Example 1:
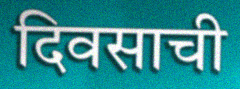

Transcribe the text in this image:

दिवसाची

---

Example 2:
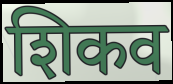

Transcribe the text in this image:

शिकव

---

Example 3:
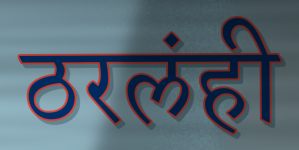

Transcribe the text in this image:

ठरलंही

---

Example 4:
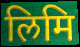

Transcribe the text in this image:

लिमि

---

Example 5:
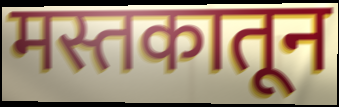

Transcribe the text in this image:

मस्तकातून